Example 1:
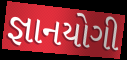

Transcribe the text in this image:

જ્ઞાનયોગી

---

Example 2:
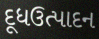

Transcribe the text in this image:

દૂધઉત્પાદન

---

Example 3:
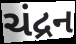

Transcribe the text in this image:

ચંદ્રન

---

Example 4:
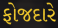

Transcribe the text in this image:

ફોજદારે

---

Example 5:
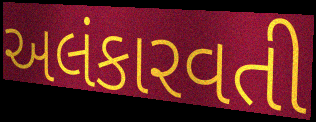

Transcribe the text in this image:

અલંકારવતી